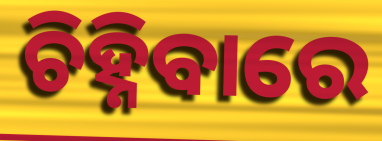
ଚିହ୍ନିବାରେ